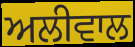
ਅਲੀਵਾਲ